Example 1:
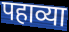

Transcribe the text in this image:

पहाव्या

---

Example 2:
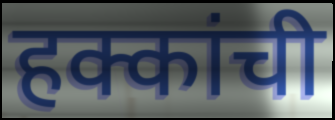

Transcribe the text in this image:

हक्कांची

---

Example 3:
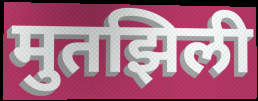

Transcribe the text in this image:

मुतझिली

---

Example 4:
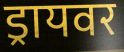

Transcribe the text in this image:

ड्रायवर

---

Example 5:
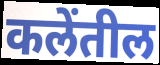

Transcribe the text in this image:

कलेंतील